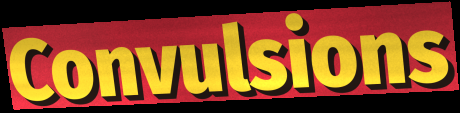
Convulsions